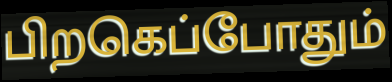
பிறகெப்போதும்